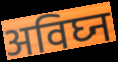
अविघ्न